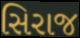
સિરાજ